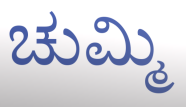
ಚುಮ್ಮಿ